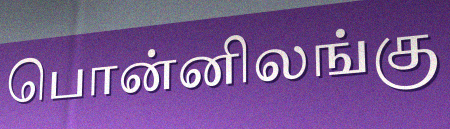
பொன்னிலங்கு